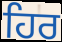
ਹਿਰ